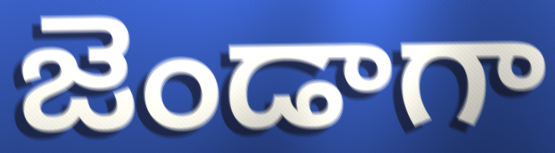
జెండాగా